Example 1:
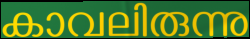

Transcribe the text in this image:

കാവലിരുന്നു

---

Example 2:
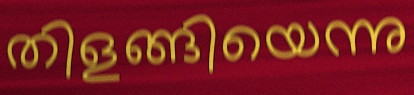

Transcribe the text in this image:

തിളങ്ങിയെന്നു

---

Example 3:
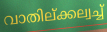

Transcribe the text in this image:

വാതില്ക്കല്വച്ച്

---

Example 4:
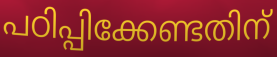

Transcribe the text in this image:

പഠിപ്പിക്കേണ്ടതിന്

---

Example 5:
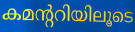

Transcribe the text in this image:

കമന്ററിയിലൂടെ